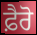
ਫ਼ੈਰੋ